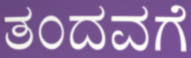
ತಂದವಗೆ